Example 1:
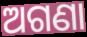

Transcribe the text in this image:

ଅଗଣା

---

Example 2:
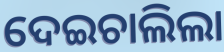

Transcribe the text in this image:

ଦେଇଚାଲିଲା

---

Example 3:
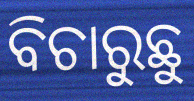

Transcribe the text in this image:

ବିଚାରୁଛୁ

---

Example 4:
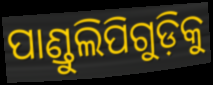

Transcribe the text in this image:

ପାଣ୍ଡୁଲିପିଗୁଡ଼ିକୁ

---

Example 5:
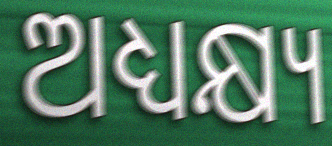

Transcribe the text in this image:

ଅଧ୍ୟକ୍ଷ୍ୟ